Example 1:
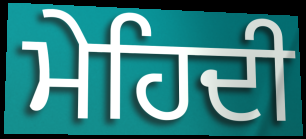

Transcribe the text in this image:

ਮੇਹਿਦੀ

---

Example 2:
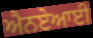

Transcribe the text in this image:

ਐਨਏਆਈ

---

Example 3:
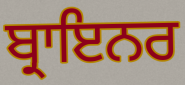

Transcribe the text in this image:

ਬ੍ਰਾਇਨਰ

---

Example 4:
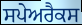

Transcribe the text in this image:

ਸਪੇਅਰੈਕਸ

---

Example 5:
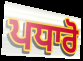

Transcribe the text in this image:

ਪਧਾਰੋ